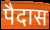
पैदास